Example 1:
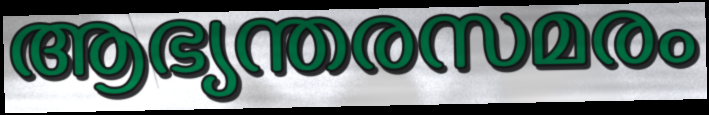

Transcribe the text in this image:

ആഭ്യന്തരസമരം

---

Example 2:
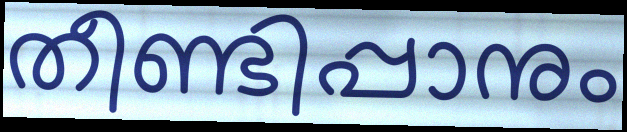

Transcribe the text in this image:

തീണ്ടിപ്പാനും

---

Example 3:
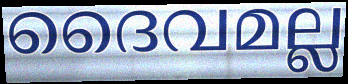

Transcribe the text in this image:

ദൈവമല്ല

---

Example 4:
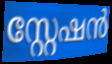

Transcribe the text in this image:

സ്റ്റേഷൻ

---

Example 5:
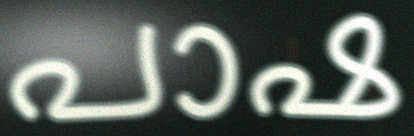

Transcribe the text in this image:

പാഷ